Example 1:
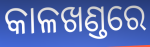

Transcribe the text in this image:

କାଳଖଣ୍ଡରେ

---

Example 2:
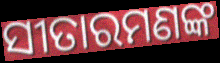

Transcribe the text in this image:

ସୀତାରମଣଙ୍କ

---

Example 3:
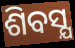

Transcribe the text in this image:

ଶିବସ୍ଯ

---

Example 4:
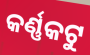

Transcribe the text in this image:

କର୍ଣ୍ଣକଟୁ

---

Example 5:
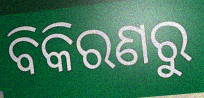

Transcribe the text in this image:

ବିକିରଣରୁ